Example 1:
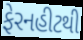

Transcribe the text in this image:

ફેરનહીટથી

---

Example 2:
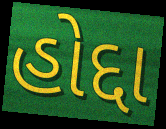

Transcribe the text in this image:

હોદ્દા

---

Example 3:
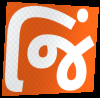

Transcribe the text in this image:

જિં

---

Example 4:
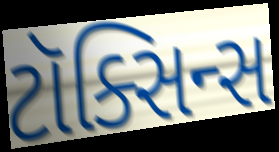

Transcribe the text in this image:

ટૉક્સિન્સ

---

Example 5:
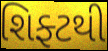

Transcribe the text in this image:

શિફ્ટથી